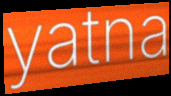
yatna